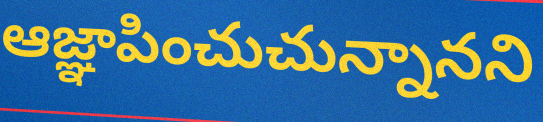
ఆజ్ఞాపించుచున్నానని